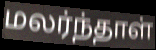
மலர்ந்தாள்